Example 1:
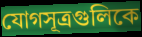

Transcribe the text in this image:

যোগসূত্রগুলিকে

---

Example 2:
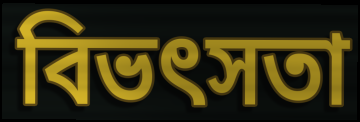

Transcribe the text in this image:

বিভৎসতা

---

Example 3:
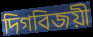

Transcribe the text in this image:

দিগবিজয়ী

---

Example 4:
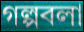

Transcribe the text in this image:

গল্পবলা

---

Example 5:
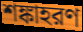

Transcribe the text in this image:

শঙ্কাহরণ